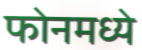
फोनमध्ये